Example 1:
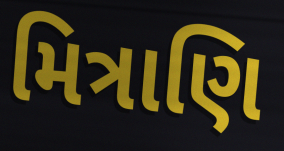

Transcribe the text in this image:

મિત્રાણિ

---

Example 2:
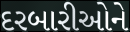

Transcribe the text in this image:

દરબારીઓને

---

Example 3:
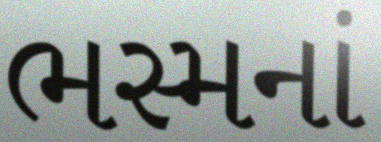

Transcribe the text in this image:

ભસ્મનાં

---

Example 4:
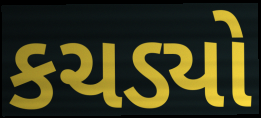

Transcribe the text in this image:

કચડ્યો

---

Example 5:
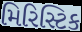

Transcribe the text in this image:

મિરિસ્ટિક